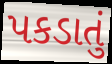
પકડાતું